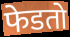
फेडतो